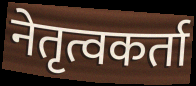
नेतृत्वकर्ता